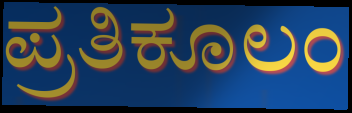
ಪ್ರತಿಕೂಲಂ